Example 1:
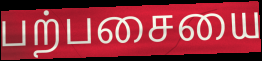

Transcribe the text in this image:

பற்பசையை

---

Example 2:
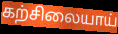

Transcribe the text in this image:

கற்சிலையாய்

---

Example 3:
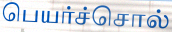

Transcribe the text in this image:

பெயர்ச்சொல்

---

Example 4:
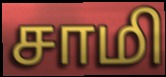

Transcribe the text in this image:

சாமி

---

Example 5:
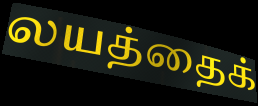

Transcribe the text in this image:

லயத்தைக்